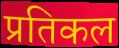
प्रतिकल